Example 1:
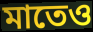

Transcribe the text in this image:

মাতেও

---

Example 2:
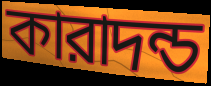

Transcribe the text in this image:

কারাদন্ড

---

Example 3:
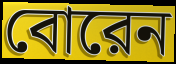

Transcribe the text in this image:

বোরেন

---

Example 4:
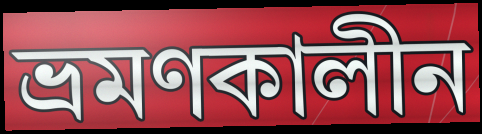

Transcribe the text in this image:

ভ্রমণকালীন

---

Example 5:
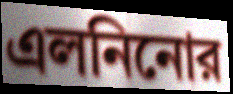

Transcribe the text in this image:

এলনিনোর